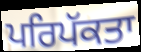
ਪਰਿਪੱਕਤਾ